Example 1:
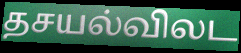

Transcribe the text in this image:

தசயல்விலட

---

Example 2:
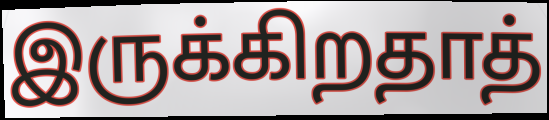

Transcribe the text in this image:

இருக்கிறதாத்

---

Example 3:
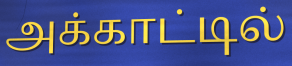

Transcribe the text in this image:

அக்காட்டில்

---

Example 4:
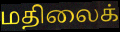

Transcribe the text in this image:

மதிலைக்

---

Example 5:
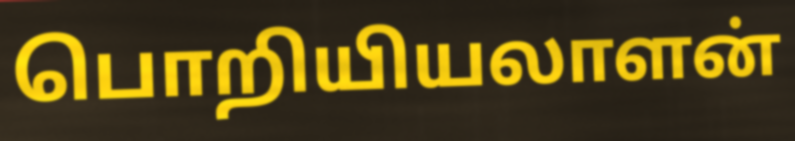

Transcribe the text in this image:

பொறியியலாளன்